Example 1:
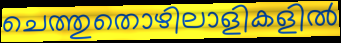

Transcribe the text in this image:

ചെത്തുതൊഴിലാളികളിൽ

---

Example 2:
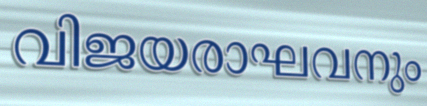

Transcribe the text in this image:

വിജയരാഘവനും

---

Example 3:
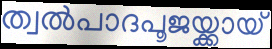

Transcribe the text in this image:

ത്വൽപാദപൂജയ്ക്കായ്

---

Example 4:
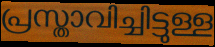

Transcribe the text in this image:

പ്രസ്താവിച്ചിട്ടുള്ള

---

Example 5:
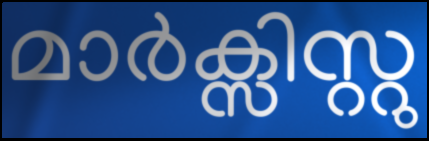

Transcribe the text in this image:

മാർക്സിസ്റ്റു